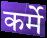
कर्मे